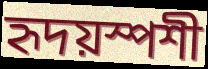
হৃদয়স্পশী